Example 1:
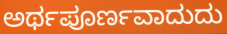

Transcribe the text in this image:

ಅರ್ಥಪೂರ್ಣವಾದುದು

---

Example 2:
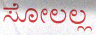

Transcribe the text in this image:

ಸೋಲಲ್ಲ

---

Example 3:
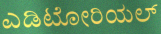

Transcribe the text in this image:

ಎಡಿಟೋರಿಯಲ್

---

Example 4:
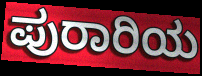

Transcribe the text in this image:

ಪುರಾರಿಯ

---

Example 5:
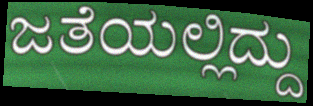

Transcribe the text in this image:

ಜತೆಯಲ್ಲಿದ್ದು